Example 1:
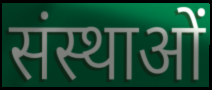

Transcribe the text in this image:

संस्थाओं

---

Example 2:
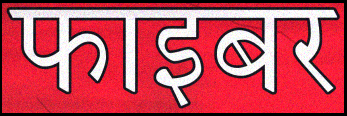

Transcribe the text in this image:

फाइबर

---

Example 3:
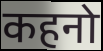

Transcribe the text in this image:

कहनो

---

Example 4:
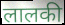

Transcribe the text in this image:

लालकी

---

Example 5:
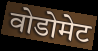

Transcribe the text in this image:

वोडोमेट